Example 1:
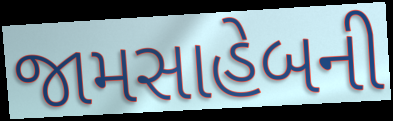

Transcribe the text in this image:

જામસાહેબની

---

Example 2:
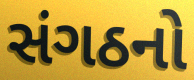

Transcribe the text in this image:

સંગઠનો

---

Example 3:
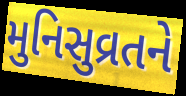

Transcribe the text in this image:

મુનિસુવ્રતને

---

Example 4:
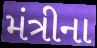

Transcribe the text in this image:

મંત્રીના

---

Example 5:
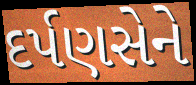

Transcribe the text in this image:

દર્પણસેને